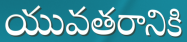
యువతరానికి